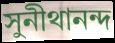
সুনীথানন্দ